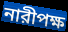
নারীপক্ষ